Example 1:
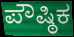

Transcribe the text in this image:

ಪೌಷ್ಠಿಕ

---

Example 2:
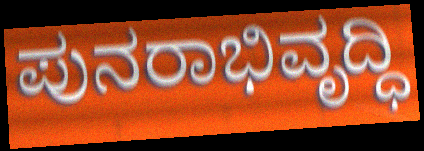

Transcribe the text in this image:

ಪುನರಾಭಿವೃದ್ಧಿ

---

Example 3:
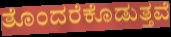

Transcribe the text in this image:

ತೊಂದರೆಕೊಡುತ್ತವೆ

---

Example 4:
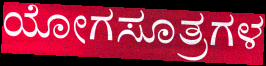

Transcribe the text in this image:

ಯೋಗಸೂತ್ರಗಳ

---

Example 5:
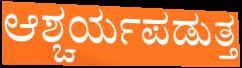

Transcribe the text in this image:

ಆಶ್ಚರ್ಯಪಡುತ್ತ